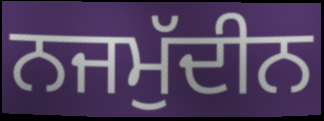
ਨਜਮੁੱਦੀਨ